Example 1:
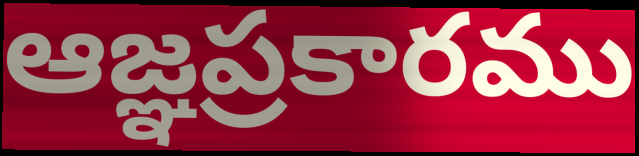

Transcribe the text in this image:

ఆజ్ఞప్రకారము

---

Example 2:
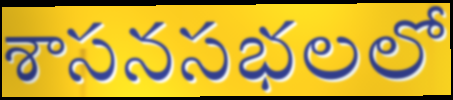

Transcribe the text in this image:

శాసనసభలలో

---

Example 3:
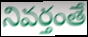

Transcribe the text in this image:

నివర్తంతే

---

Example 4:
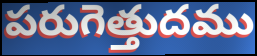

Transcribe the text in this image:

పరుగెత్తుదము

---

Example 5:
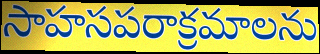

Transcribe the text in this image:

సాహసపరాక్రమాలను